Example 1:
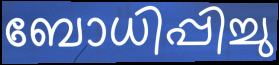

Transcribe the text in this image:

ബോധിപ്പിച്ചു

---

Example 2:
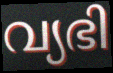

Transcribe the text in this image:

വ്യഭി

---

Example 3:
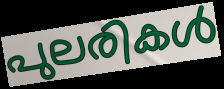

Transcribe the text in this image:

പുലരികൾ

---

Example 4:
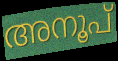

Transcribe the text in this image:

അനൂപ്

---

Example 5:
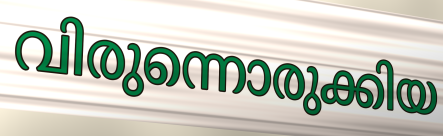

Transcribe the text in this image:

വിരുന്നൊരുക്കിയ